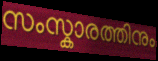
സംസ്കാരത്തിനും